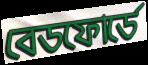
বেডফোর্ডে